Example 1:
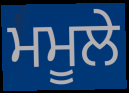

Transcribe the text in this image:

ਮਮੂਲੇ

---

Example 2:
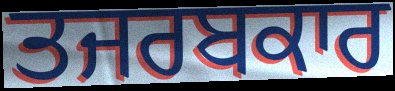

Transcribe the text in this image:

ਤਜਰਬਕਾਰ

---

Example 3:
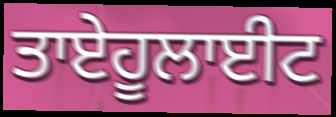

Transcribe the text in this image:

ਤਾਏਹੂਲਾਈਟ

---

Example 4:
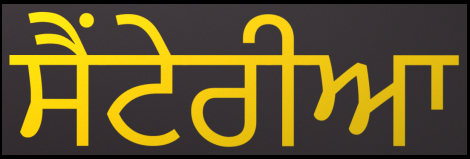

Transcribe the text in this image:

ਸੈਂਟੇਰੀਆ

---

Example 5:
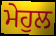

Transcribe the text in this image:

ਮੇਹੁਲ